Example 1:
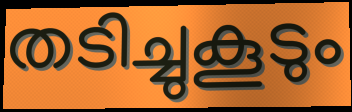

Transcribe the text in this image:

തടിച്ചുകൂടും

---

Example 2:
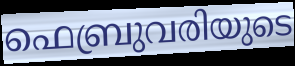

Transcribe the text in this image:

ഫെബ്രുവരിയുടെ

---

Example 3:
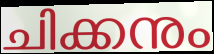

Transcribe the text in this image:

ചിക്കനും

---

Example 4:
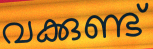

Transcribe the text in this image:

വക്കുണ്ട്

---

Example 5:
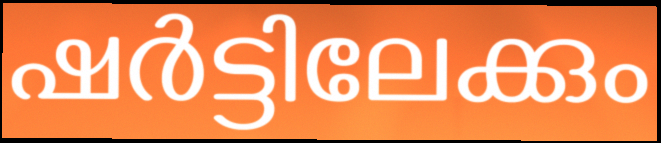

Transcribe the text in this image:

ഷർട്ടിലേക്കും